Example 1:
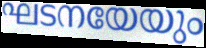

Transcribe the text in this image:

ഘടനയേയും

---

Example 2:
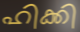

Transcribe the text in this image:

ഹിക്കി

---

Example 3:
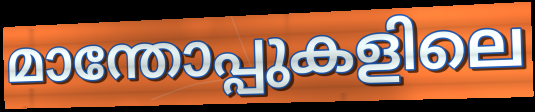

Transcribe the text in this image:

മാന്തോപ്പുകളിലെ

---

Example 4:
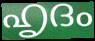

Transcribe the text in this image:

ഹൃദം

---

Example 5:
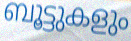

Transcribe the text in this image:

ബൂട്ടുകളും